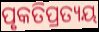
ପୃକତିପ୍ରତ୍ୟୟ